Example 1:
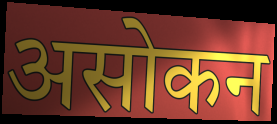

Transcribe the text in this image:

असोकन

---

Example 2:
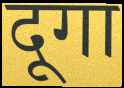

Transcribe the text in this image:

दूगा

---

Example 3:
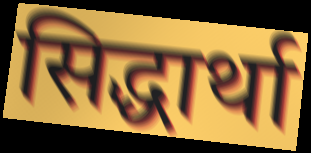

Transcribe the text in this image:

सिद्धार्था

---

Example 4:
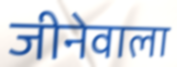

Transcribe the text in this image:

जीनेवाला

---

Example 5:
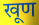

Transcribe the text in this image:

खूण